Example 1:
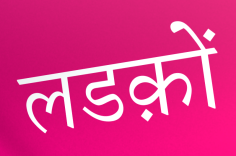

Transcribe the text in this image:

लडक़ों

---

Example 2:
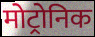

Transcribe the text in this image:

मोट्रोनिक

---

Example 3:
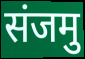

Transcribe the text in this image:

संजमु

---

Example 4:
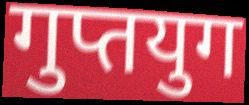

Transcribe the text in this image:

गुप्तयुग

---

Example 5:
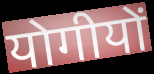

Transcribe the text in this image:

योगीयों